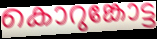
കൊറുങ്കോട്ട